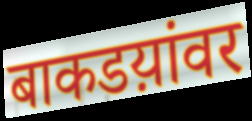
बाकडय़ांवर